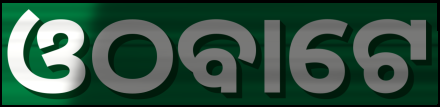
ଓଠବାଟେ